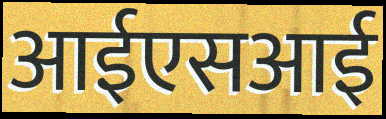
आईएसआई